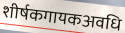
शीर्षकगायकअवधि